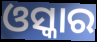
ଓସ୍କାର